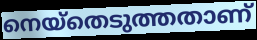
നെയ്തെടുത്തതാണ്